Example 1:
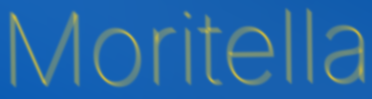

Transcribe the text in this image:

Moritella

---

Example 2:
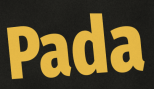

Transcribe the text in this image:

Pada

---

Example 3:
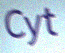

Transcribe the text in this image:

Cyt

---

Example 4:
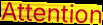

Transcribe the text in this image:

Attention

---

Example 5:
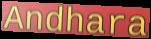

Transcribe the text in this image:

Andhara